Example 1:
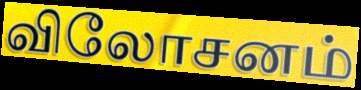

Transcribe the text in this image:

விலோசனம்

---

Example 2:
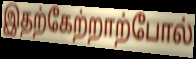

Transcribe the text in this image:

இதற்கேற்றாற்போல்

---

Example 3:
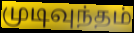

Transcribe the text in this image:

முடிவுந்தம்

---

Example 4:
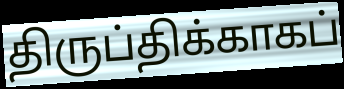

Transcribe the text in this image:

திருப்திக்காகப்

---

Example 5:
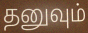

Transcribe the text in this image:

தனுவும்